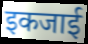
इकजाई